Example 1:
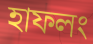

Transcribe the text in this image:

হাফলং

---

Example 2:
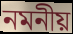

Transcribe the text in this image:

নমনীয়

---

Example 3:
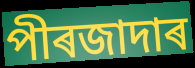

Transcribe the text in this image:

পীৰজাদাৰ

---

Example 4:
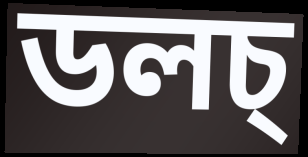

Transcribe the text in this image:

ডলচ্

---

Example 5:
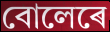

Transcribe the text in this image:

বোলেৰে